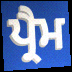
ਪ੍ਰੈਮ